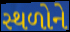
સ્થળોને